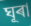
ঘূৰা